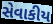
સેવાકીય